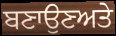
ਬਣਾਉਣਅਤੇ